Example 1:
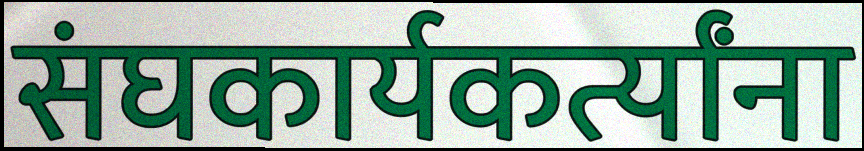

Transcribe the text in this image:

संघकार्यकर्त्यांना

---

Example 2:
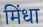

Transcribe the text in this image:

मिंधा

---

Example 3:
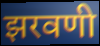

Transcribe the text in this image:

झरवणी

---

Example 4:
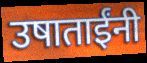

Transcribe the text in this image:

उषाताईंनी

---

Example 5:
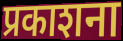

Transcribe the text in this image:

प्रकाशना